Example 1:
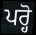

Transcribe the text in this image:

ਪਰ੍ਹੋ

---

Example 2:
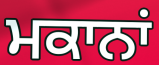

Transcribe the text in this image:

ਮਕਾਨਾਂ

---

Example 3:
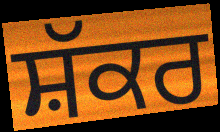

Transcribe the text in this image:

ਸ਼ੱਕਰ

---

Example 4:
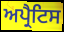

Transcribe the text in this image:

ਅਪ੍ਰੈਟਿਸ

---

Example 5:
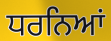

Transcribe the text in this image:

ਧਰਨਿਆਂ